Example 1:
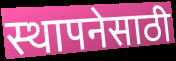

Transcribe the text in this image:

स्थापनेसाठी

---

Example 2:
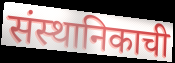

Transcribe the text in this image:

संस्थानिकाची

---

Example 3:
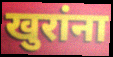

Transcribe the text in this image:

खुरांना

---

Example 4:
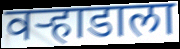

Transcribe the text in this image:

वऱ्हाडाला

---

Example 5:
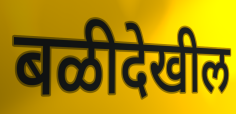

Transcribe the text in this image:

बळीदेखील